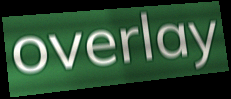
overlay